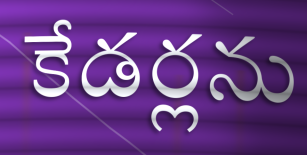
కేడర్లను